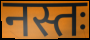
नस्तः